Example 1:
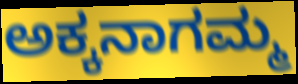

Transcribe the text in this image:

ಅಕ್ಕನಾಗಮ್ಮ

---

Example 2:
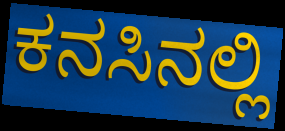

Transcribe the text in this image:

ಕನಸಿನಲ್ಲಿ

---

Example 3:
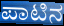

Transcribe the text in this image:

ಪಾಟಿನ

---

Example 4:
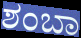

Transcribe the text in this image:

ಶಂಬಾ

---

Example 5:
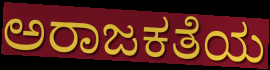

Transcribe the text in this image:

ಅರಾಜಕತೆಯ